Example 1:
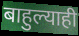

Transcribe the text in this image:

बाहुल्याही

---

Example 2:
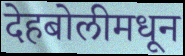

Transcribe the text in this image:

देहबोलीमधून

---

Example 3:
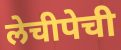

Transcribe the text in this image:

लेचीपेची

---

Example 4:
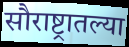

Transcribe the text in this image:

सौराष्ट्रातल्या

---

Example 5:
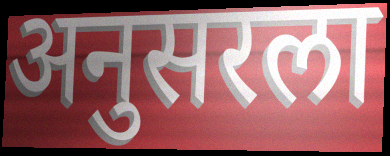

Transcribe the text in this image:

अनुसरला